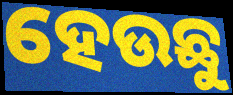
ହେଉଛୁ